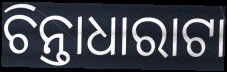
ଚିନ୍ତାଧାରାଟା